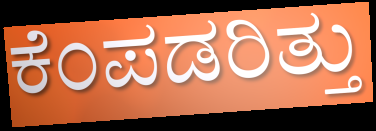
ಕೆಂಪಡರಿತ್ತು